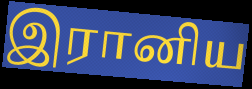
இரானிய